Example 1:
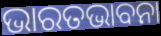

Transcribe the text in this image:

ଭାରତଭାବନା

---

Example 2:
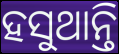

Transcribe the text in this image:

ହସୁଥାନ୍ତି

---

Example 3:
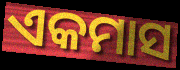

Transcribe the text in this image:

ଏକମାସ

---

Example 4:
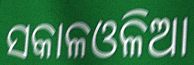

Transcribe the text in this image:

ସକାଳଓଳିଆ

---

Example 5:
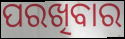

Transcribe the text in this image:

ପରଖିବାର